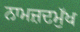
ਨਾਮਜ਼ਦਮੁੱਖ